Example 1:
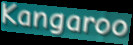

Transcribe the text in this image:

Kangaroo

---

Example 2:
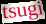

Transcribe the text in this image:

tsugi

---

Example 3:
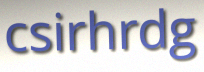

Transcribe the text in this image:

csirhrdg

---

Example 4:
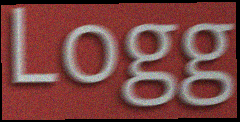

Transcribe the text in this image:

Logg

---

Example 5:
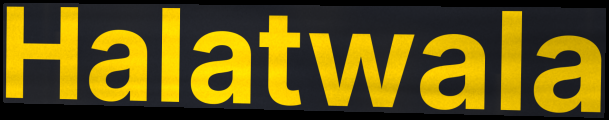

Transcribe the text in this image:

Halatwala